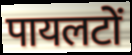
पायलटों